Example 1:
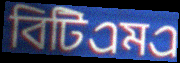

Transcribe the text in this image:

বিটিএমএ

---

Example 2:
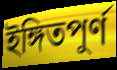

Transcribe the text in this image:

ইঙ্গিতপুর্ণ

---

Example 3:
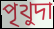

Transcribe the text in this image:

পৃথুদা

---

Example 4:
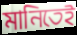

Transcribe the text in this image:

মানিতেই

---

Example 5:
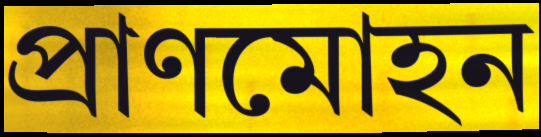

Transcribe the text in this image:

প্রাণমোহন